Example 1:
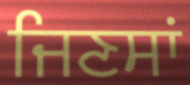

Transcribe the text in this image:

ਜਿਣਸਾਂ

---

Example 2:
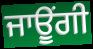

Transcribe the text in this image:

ਜਾਊਂਗੀ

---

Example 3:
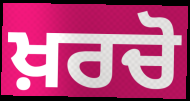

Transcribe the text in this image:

ਖ਼ਰਚੋ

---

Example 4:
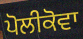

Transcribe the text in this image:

ਪੋਲੀਕੋਵਾ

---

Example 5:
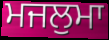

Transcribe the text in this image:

ਮਜਲੁਮਾ